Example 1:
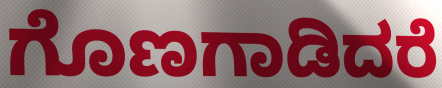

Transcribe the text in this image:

ಗೊಣಗಾಡಿದರೆ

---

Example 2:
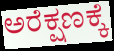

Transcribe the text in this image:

ಅರೆಕ್ಷಣಕ್ಕೆ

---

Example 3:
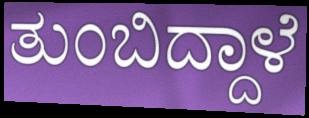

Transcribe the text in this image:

ತುಂಬಿದ್ದಾಳೆ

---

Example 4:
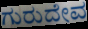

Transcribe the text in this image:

ಗುರುದೇವ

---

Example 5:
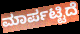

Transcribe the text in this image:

ಮಾರ್ಪಟ್ಟಿದೆ